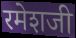
रमेशजी